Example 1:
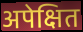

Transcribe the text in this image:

अपेक्षित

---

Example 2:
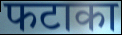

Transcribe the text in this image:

फटाका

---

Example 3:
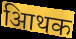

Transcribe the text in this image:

आिथक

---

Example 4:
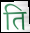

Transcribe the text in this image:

ति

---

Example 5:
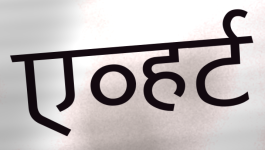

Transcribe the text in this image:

एव्हर्ट